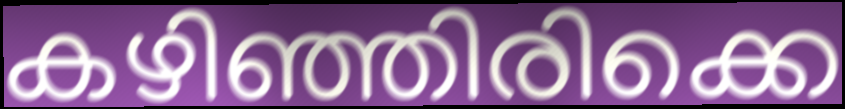
കഴിഞ്ഞിരിക്കെ